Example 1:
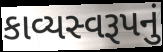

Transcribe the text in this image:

કાવ્યસ્વરૂપનું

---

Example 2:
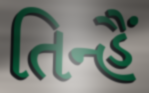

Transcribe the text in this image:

તિન્હૈં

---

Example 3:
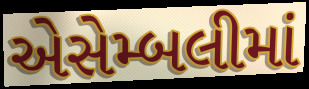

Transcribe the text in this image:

એસેમ્બલીમાં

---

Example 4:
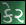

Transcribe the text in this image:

કેર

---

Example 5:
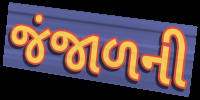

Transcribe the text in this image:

જંજાળની